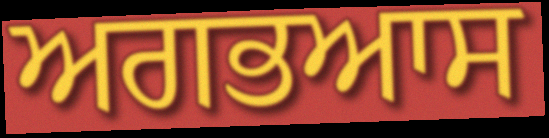
ਅਗਭਆਸ